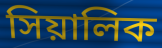
সিয়ালিক